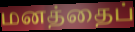
மனத்தைப்